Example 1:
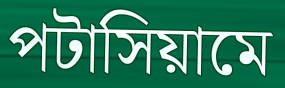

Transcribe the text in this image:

পটাসিয়ামে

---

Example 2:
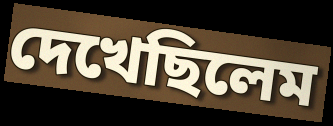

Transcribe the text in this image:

দেখেছিলেম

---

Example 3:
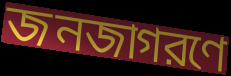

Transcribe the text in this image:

জনজাগরণে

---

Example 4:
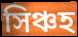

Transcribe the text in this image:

সিঞ্চহ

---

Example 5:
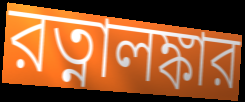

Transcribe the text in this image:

রত্নালঙ্কার